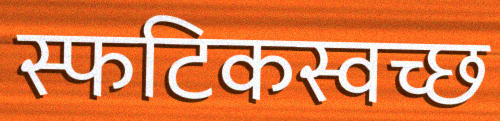
स्फटिकस्वच्छ